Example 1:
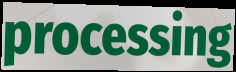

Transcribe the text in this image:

processing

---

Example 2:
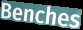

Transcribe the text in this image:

Benches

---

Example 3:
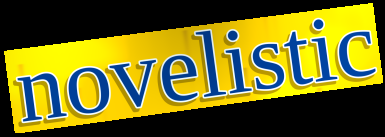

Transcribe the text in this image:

novelistic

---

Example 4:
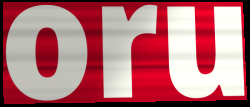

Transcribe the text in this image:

oru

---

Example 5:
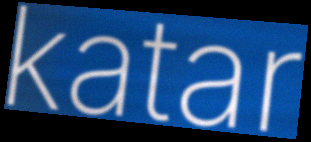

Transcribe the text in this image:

katar